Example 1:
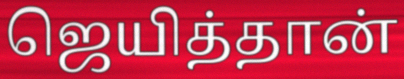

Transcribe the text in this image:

ஜெயித்தான்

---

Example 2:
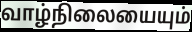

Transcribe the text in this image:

வாழ்நிலையையும்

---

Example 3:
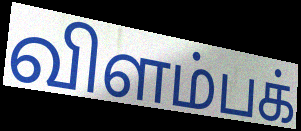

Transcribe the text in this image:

விளம்பக்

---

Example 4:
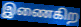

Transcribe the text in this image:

இணைகிற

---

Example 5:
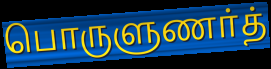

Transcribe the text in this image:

பொருளுணர்த்